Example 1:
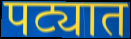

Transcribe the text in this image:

पट्यात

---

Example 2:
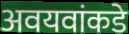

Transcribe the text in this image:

अवयवांकडे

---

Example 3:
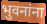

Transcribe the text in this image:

भुवनांना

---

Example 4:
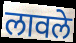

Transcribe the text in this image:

लावले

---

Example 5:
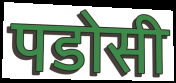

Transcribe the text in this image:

पडोसी